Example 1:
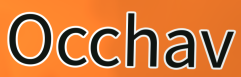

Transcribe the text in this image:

Occhav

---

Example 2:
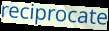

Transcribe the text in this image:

reciprocate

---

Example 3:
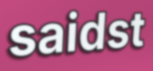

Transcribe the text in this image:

saidst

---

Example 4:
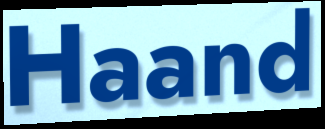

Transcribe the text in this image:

Haand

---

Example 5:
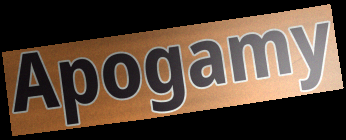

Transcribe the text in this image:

Apogamy